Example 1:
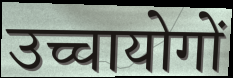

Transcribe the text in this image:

उच्‍चायोगों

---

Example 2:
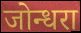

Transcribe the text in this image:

जोन्धरा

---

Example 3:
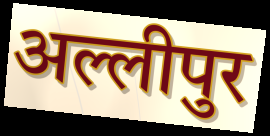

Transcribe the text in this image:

अल्लीपुर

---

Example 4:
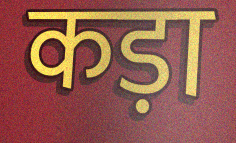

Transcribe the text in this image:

कड़ा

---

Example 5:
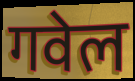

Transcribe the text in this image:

गवेल